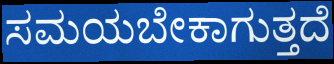
ಸಮಯಬೇಕಾಗುತ್ತದೆ